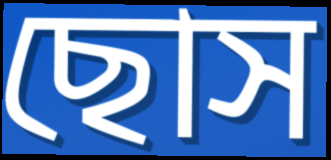
ছোস